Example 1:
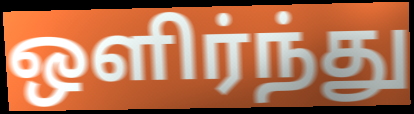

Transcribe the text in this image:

ஒளிர்ந்து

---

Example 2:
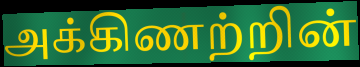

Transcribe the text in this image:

அக்கிணற்றின்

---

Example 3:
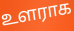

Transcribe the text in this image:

உளராக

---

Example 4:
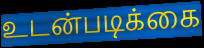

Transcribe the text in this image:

உடன்படிக்கை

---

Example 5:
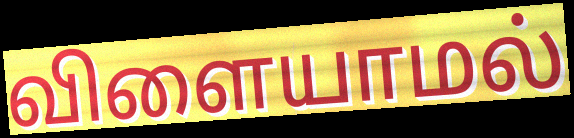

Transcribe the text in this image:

விளையாமல்